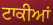
ਟਾਕੀਆਂ